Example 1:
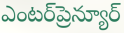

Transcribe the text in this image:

ఎంటర్‌ప్రెన్యూర్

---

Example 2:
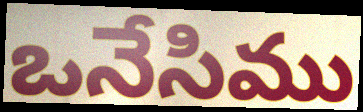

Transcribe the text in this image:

ఒనేసిము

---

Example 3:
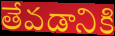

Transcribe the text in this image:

తేవడానికి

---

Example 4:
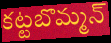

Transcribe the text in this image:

కట్టబొమ్మన్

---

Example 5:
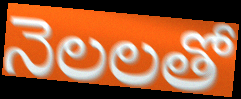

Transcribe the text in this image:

నెలలతో